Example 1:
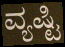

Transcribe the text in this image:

ವ್ಯಷ್ಟಿ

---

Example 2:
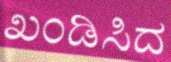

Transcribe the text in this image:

ಖಂಡಿಸಿದ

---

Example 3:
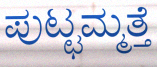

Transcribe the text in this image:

ಪುಟ್ಟಮ್ಮತ್ತೆ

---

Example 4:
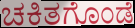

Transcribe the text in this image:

ಚಕಿತಗೊಂಡೆ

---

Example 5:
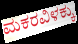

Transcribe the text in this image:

ಮಕರವಿಳಕ್ಕು